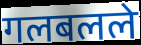
गलबलले